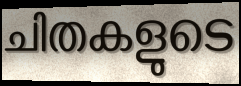
ചിതകളുടെ